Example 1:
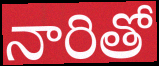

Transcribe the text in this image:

నారితో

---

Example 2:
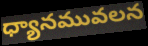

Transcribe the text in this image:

ధ్యానమువలన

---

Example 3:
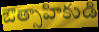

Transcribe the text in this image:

ఔత్సాహికుడి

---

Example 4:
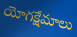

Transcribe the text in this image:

యోగక్షేమాలు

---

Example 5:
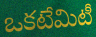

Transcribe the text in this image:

ఒకటేమిటీ